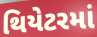
થિયેટરમાં